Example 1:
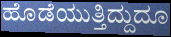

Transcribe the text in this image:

ಹೊಡೆಯುತ್ತಿದ್ದುದೂ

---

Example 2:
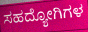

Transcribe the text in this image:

ಸಹದ್ಯೋಗಿಗಳ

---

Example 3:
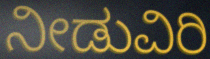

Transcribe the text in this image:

ನೀಡುವಿರಿ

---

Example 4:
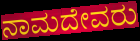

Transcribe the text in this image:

ನಾಮದೇವರು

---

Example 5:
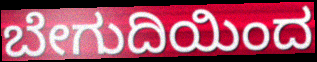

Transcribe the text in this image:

ಬೇಗುದಿಯಿಂದ